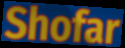
Shofar